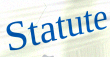
Statute